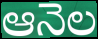
ఆనెల